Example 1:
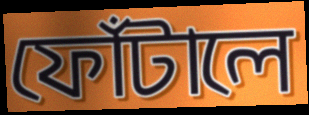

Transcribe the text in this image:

ফোঁটালে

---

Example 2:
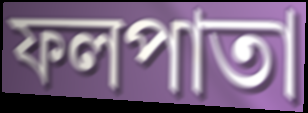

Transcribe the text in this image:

ফলপাতা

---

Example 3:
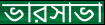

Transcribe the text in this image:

ভারসাভা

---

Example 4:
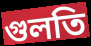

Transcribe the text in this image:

গুলতি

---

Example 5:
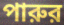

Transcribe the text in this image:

পারুর